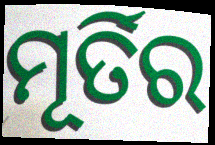
ମୂର୍ତିର